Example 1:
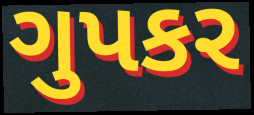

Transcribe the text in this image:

ગુપકર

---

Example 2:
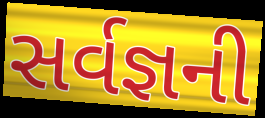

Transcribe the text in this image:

સર્વજ્ઞની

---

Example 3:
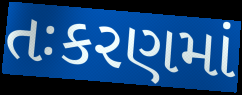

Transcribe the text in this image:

તઃકરણમાં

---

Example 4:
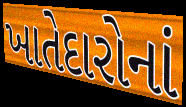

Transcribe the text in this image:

ખાતેદારોનાં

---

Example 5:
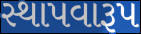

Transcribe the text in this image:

સ્થાપવારૂપ